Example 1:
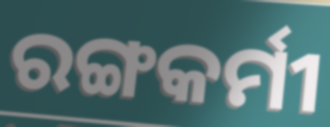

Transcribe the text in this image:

ରଙ୍ଗକର୍ମୀ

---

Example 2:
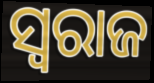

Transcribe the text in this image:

ସ୍ଵରାଜ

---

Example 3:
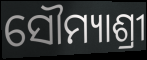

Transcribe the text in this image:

ସୌମ୍ୟାଶ୍ରୀ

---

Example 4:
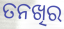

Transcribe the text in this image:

ତନଖିର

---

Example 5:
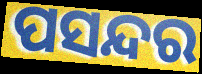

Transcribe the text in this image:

ପସନ୍ଦର